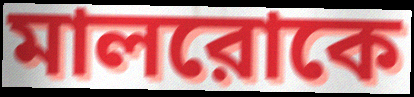
মালরোকে